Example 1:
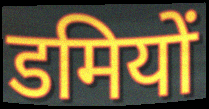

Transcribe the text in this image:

डमियों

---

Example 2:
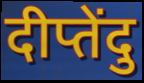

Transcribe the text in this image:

दीप्तेंदु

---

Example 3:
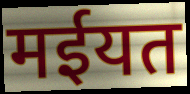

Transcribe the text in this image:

मईयत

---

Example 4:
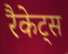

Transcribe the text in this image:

रैकेट्स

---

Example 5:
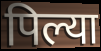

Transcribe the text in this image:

पिल्या